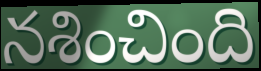
నశించింది